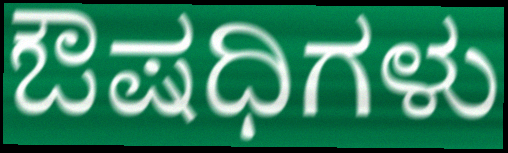
ಔಷಧಿಗಳು